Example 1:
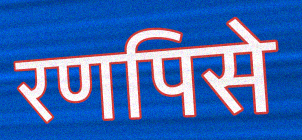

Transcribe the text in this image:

रणपिसे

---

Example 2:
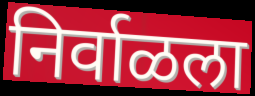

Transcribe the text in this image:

निर्वाळला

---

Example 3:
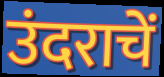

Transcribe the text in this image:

उंदराचें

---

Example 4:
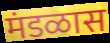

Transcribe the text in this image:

मंडळास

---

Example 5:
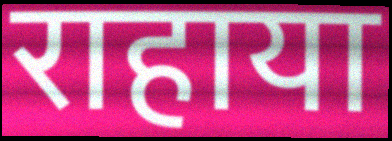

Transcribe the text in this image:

राहाया